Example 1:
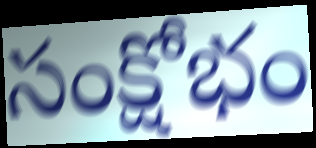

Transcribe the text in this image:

సంక్షోభం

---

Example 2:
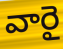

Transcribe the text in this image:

వారై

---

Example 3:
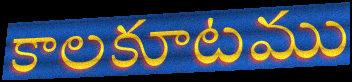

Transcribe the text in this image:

కాలకూటము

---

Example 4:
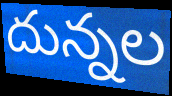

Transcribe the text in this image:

దున్నల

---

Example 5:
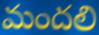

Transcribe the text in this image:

మందలి